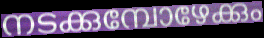
നടക്കുമ്പോഴേക്കും